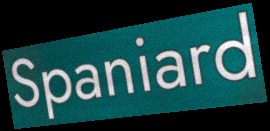
Spaniard